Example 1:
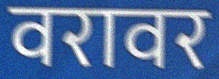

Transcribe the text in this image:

वरावर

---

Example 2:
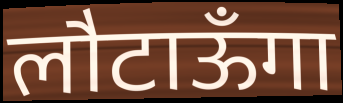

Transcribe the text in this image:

लौटाऊँगा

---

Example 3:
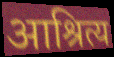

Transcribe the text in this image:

आश्रित्य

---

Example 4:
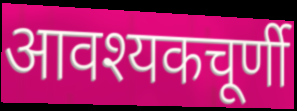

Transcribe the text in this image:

आवश्यकचूर्णी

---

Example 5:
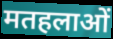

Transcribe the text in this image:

मतहलाओं